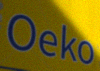
Oeko